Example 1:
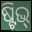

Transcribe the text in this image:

ଷ୍ଟିଭ୍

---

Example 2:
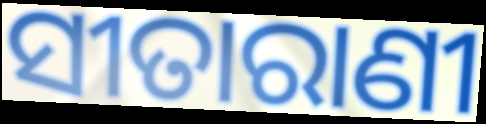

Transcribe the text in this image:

ସୀତାରାଣୀ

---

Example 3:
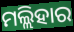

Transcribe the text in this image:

ମଲ୍ଲିହାର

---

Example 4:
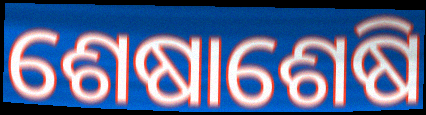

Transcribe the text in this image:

ଶେଷାଶେଷି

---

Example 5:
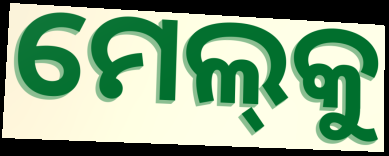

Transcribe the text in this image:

ମେଲ୍‌କୁ